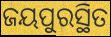
ଜୟପୁରସ୍ଥିତ